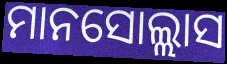
ମାନସୋଲ୍ଲାସ